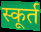
स्कूर्त